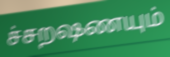
ச்சறஷணயும்